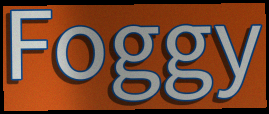
Foggy